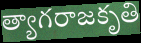
త్యాగరాజకృతి